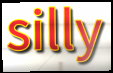
silly